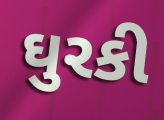
ઘુરકી